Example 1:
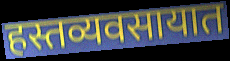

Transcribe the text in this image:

हस्तव्यवसायात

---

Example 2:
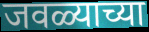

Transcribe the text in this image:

जवळ्याच्या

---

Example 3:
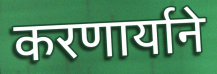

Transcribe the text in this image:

करणार्याने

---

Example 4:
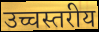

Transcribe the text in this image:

उच्चस्तरीय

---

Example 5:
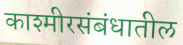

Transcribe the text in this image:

काश्मीरसंबंधातील